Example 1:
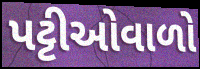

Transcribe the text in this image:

પટ્ટીઓવાળો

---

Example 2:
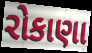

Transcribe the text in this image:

રોકાણા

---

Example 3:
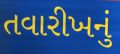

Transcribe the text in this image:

તવારીખનું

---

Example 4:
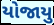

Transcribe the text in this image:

યોજાયુ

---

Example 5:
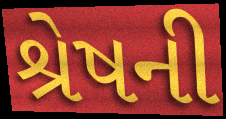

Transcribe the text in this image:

શ્રેષની